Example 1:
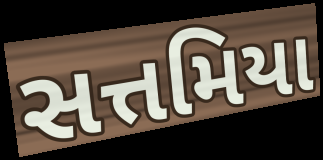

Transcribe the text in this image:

સત્તમિયા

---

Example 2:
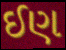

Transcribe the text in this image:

ઈણ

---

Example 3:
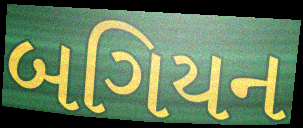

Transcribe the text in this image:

બગિયન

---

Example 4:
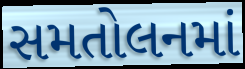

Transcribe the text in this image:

સમતોલનમાં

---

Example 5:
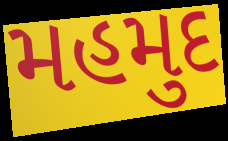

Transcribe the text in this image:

મહમુદ